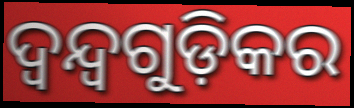
ଦ୍ୱନ୍ଦ୍ୱଗୁଡ଼ିକର